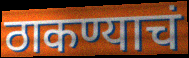
ठाकण्याचं